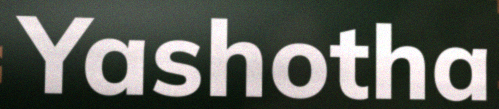
Yashotha